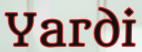
Yardi